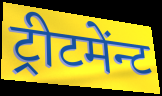
ट्रीटमेंन्ट